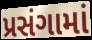
પ્રસંગામાં